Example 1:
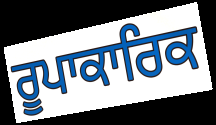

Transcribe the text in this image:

ਰੂਪਾਕਾਰਿਕ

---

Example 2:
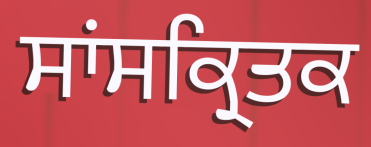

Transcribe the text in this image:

ਸਾਂਸਕ੍ਰਿਤਕ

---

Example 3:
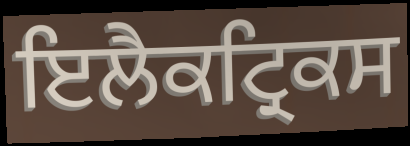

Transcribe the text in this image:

ਇਲੈਕਟ੍ਰਿਕਸ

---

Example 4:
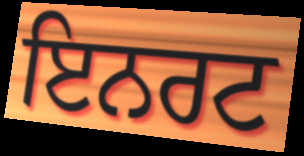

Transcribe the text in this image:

ਇਨਰਟ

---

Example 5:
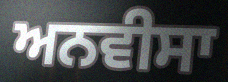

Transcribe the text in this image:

ਅਨਵੀਸਾ